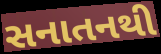
સનાતનથી